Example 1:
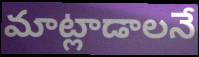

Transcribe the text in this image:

మాట్లాడాలనే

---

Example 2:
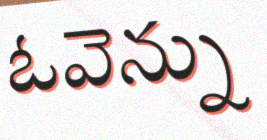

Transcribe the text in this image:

ఓవెన్ను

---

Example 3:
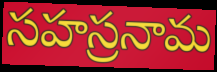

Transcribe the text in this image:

సహస్రనామ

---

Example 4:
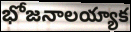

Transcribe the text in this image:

భోజనాలయ్యాక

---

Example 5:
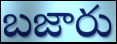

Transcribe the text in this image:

బజారు